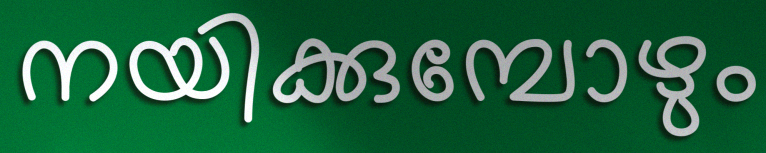
നയിക്കുമ്പോഴും